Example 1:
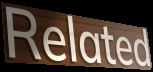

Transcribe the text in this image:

Related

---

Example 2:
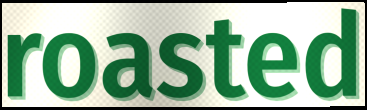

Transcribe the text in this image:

roasted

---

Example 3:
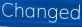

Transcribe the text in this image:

Changed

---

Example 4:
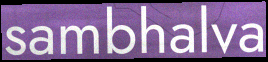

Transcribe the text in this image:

sambhalva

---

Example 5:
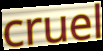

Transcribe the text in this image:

cruel